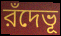
রঁদেভূ